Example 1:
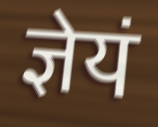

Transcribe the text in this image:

ज्ञेयं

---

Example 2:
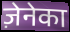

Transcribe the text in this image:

ज़ेनेका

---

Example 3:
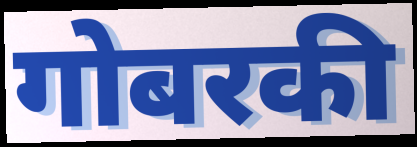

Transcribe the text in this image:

गोबरकी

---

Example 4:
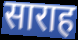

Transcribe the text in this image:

साराह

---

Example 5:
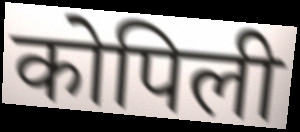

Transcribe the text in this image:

कोपिली